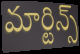
మార్టిన్స్